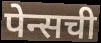
पेन्सची